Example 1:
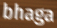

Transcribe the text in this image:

bhaga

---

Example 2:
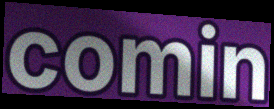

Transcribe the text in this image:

comin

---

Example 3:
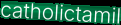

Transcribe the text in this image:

catholictamil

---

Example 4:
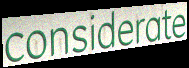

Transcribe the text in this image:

considerate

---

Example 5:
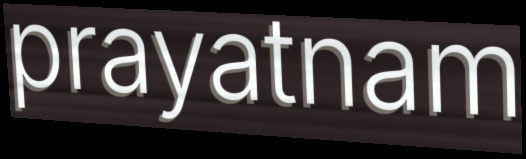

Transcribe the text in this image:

prayatnam